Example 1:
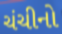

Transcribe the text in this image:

ચંચીનો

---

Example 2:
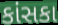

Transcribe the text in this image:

કાંસકા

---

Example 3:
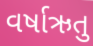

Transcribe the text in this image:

વર્ષાઋતુ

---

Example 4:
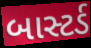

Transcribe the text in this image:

બાસ્ટર્ડ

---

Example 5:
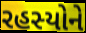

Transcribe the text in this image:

રહસ્યોને